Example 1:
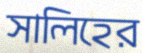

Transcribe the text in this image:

সালিহের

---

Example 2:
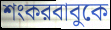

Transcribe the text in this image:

শংকরবাবুকে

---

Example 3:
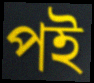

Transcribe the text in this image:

পই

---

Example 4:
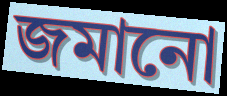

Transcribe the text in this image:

জমানো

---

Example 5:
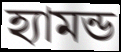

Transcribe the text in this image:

হ্যামন্ড